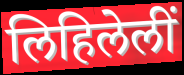
लिहिलेलीं